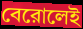
বেরোলেই